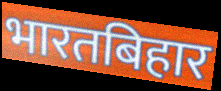
भारतबिहार